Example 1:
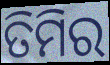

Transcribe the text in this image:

ତିମିର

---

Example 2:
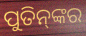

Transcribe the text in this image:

ପୁତିନ୍‌ଙ୍କର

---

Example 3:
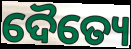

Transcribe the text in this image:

ଦୈତ୍ୟେ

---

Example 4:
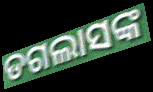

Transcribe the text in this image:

ଡଗଲାସଙ୍କ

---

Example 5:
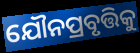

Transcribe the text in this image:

ଯୌନପ୍ରବୃତ୍ତିକୁ